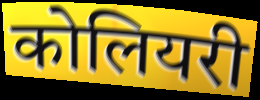
कोलियरी